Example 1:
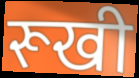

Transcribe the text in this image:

रूखी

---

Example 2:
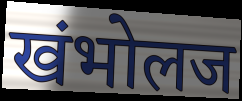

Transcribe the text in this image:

खंभोलज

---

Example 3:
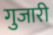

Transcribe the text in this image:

गुजारी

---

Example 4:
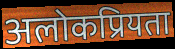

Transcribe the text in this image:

अलोकप्रियता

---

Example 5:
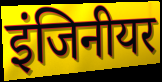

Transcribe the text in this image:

इंजिनीयर